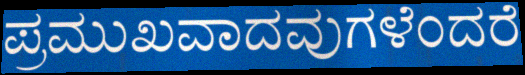
ಪ್ರಮುಖವಾದವುಗಳೆಂದರೆ